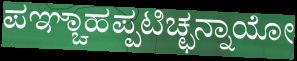
ಪಞ್ಚಾಹಪ್ಪಟಿಚ್ಛನ್ನಾಯೋ